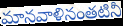
మానవాళినంతటినీ